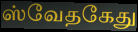
ஸ்வேதகேது